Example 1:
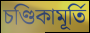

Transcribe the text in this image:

চণ্ডিকামূর্তি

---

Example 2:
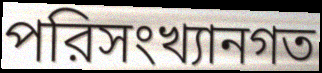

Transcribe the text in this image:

পরিসংখ্যানগত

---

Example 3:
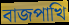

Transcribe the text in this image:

বাজপাখি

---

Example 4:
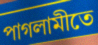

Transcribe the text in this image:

পাগলামীতে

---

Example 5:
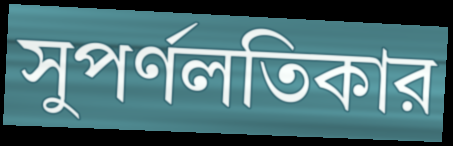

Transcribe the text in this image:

সুপর্ণলতিকার